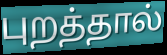
புறத்தால்